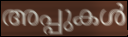
അപ്പുകൾ